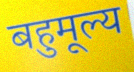
बहुमूल्य